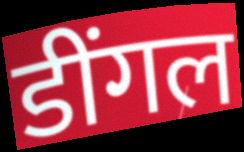
डींगल